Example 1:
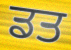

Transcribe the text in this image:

ਡਤ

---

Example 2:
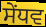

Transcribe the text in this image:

ਸੇਂਧਵ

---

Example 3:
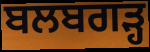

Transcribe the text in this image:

ਬਲਬਗੜ੍ਹ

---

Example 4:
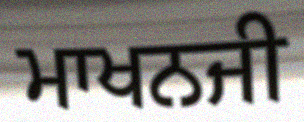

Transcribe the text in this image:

ਮਾਖਨਜੀ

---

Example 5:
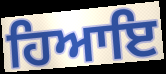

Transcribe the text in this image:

ਹਿਆਇ